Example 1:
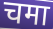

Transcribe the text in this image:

चमा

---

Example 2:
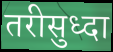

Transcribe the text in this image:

तरीसुध्दा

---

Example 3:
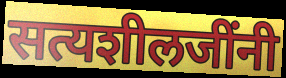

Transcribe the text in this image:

सत्यशीलजींनी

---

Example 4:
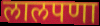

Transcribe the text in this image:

लालपणा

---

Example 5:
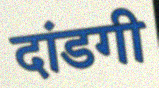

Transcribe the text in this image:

दांडगी